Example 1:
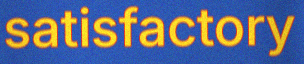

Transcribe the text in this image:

satisfactory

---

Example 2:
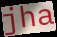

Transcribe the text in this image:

jha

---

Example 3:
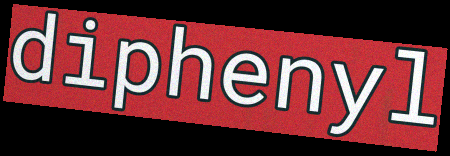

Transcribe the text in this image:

diphenyl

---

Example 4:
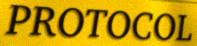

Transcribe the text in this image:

PROTOCOL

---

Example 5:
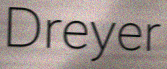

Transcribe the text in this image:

Dreyer